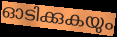
ഓടിക്കുകയും